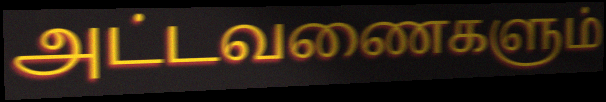
அட்டவணைகளும்